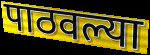
पाठवल्या